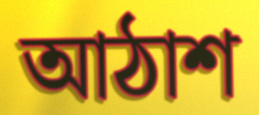
আঠাশ